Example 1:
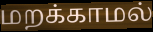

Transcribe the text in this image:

மறக்காமல்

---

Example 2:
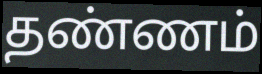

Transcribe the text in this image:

தண்ணம்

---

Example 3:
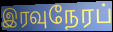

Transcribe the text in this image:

இரவுநேரப்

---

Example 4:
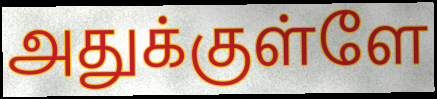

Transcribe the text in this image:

அதுக்குள்ளே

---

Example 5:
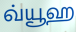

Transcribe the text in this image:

வ்யூஹ